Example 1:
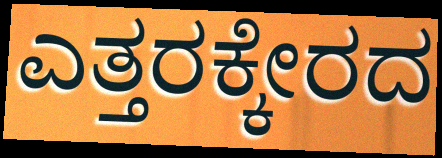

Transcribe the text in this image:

ಎತ್ತರಕ್ಕೇರದ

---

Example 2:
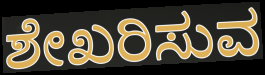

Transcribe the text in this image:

ಶೇಖರಿಸುವ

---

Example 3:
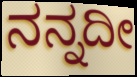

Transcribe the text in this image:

ನನ್ನದೀ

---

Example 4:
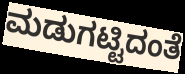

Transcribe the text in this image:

ಮಡುಗಟ್ಟಿದಂತೆ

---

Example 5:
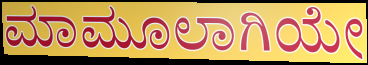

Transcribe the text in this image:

ಮಾಮೂಲಾಗಿಯೇ